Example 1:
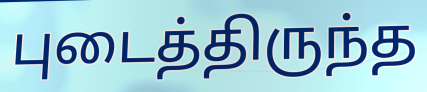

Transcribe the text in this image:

புடைத்திருந்த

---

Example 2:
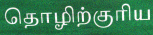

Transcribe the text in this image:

தொழிற்குரிய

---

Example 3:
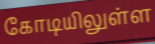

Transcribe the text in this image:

கோடியிலுள்ள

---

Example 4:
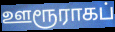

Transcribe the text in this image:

ஊரூராகப்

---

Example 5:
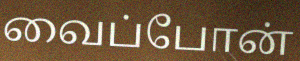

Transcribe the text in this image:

வைப்போன்